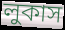
লুকাস